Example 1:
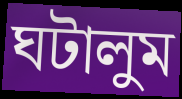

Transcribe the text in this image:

ঘটালুম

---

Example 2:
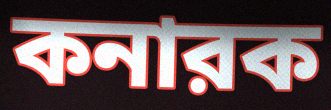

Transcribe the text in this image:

কনারক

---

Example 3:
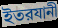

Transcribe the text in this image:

ইতরযানী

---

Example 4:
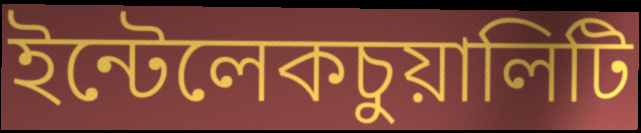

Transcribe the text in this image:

ইন্টেলেকচুয়ালিটি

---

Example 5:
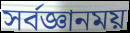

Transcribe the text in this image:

সর্বজ্ঞানময়